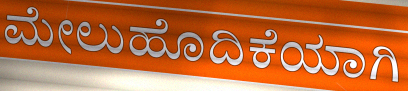
ಮೇಲುಹೊದಿಕೆಯಾಗಿ